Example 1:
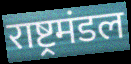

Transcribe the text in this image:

राष्ट्रमंडल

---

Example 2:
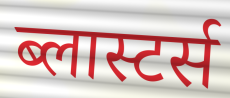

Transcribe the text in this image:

ब्लास्टर्स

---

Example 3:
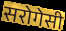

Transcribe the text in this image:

सरोगेसी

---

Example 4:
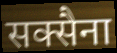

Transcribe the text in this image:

सक्सैना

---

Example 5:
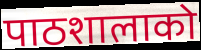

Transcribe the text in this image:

पाठशालाको